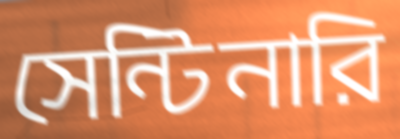
সেন্টিনারি